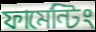
ফার্মেন্টিং